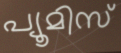
പ്യൂമിസ്